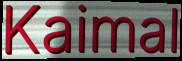
Kaimal